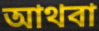
আথবা